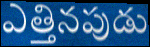
ఎత్తినపుడు